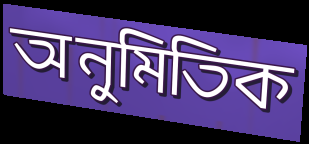
অনুমিতিক